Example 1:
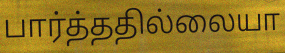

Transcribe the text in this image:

பார்த்ததில்லையா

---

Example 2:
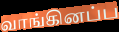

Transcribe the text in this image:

வாங்கினப்ப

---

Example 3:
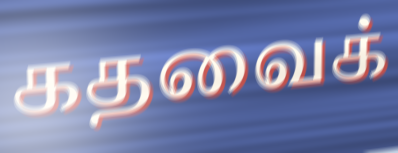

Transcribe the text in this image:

கதவைக்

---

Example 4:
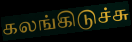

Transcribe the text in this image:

கலங்கிடுச்சு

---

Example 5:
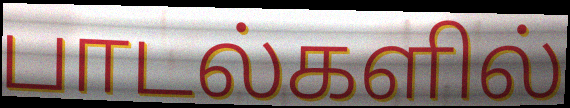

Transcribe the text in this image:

பாடல்களில்